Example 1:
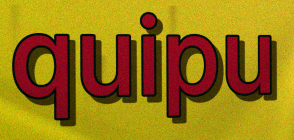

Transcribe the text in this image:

quipu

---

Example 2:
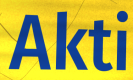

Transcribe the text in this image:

Akti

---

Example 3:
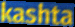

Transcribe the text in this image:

kashta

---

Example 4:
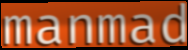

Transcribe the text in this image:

manmad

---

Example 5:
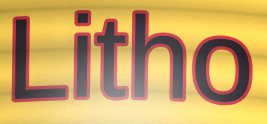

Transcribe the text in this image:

Litho